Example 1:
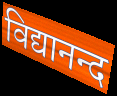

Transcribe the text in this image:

विद्यानन्द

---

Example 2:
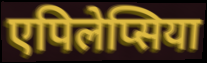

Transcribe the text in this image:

एपिलेप्सिया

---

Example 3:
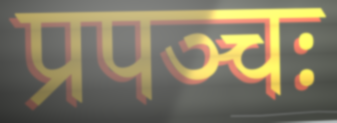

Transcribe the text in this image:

प्रपञ्चः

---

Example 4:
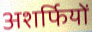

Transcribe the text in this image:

अशर्फियों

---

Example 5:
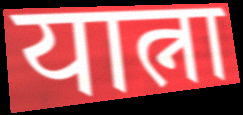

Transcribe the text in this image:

यात्ना